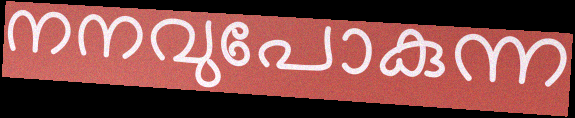
നനവുപോകുന്ന